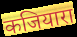
कजियारा